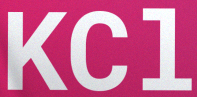
KCl